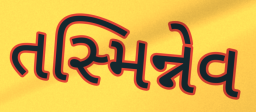
તસ્મિન્નેવ